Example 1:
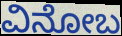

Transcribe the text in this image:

ವಿನೋಬ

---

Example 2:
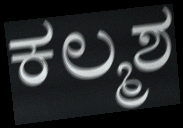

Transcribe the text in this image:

ಕಲ್ಮಶ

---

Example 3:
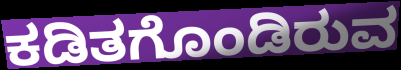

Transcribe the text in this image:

ಕಡಿತಗೊಂಡಿರುವ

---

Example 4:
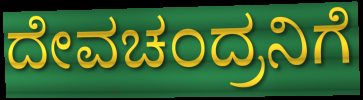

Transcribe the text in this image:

ದೇವಚಂದ್ರನಿಗೆ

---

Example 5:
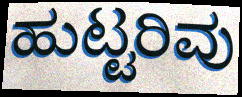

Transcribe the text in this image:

ಹುಟ್ಟರಿವು